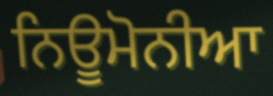
ਨਿਊਮੋਨੀਆ